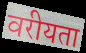
वरीयता